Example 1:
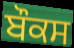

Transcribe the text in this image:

ਬੌਕਸ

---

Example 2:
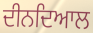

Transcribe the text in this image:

ਦੀਨਦਿਆਲ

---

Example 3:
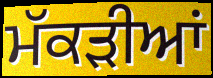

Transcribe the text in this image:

ਮੱਕੜੀਆਂ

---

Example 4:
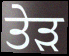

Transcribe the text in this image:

ਤੇੜ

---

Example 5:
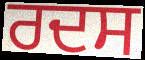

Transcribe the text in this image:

ਰਦਸ